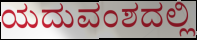
ಯದುವಂಶದಲ್ಲಿ